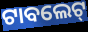
ଟାବଲେଟ୍